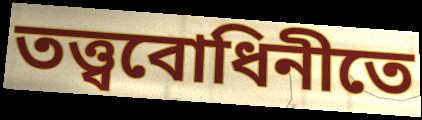
তত্ত্ববোধিনীতে